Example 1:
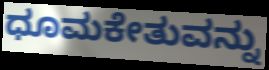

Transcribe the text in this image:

ಧೂಮಕೇತುವನ್ನು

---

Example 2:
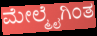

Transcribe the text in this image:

ಮೇಲ್ಮೈಗಿಂತ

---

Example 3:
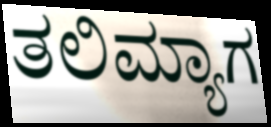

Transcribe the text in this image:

ತಲಿಮ್ಯಾಗ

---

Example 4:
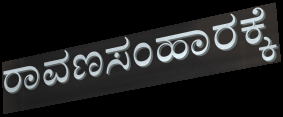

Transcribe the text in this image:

ರಾವಣಸಂಹಾರಕ್ಕೆ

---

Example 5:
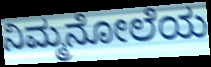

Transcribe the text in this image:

ನಿಮ್ಮನೋಲೆಯ